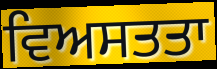
ਵਿਅਸਤਤਾ